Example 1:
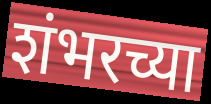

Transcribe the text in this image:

शंभरच्या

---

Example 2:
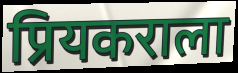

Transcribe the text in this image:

प्रियकराला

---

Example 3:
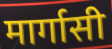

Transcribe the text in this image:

मार्गासी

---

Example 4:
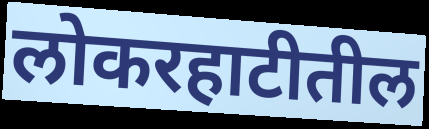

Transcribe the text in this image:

लोकरहाटीतील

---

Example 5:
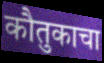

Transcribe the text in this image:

कौतुकाचा